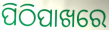
ପିଠିପାଖରେ